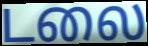
டலை